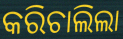
କରିଚାଲିଲା